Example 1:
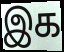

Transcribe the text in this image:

இக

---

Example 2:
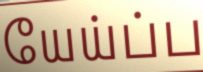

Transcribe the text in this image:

யேய்ப்ப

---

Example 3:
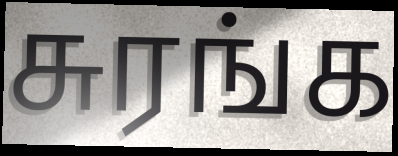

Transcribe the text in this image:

சுரங்க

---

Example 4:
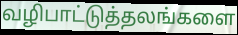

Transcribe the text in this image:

வழிபாட்டுத்தலங்களை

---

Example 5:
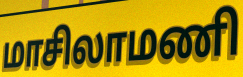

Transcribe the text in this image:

மாசிலாமணி